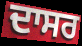
ਦਾਸਰ